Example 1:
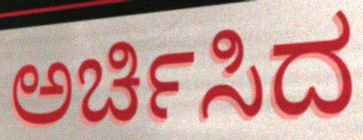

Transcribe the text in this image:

ಅರ್ಚಿಸಿದ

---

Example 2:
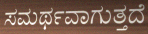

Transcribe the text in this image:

ಸಮರ್ಥವಾಗುತ್ತದೆ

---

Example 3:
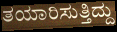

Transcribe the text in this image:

ತಯಾರಿಸುತ್ತಿದ್ದು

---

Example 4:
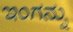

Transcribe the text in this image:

ಇಂಗನ್ನು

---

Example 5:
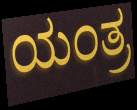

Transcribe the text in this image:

ಯಂತ್ರ